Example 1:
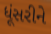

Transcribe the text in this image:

ધૂંસરીને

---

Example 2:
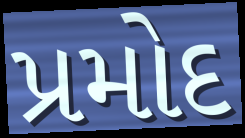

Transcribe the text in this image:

પ્રમોદ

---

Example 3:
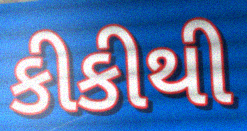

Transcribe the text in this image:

કીકીથી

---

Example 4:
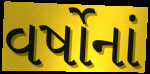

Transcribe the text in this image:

વર્ષોનાં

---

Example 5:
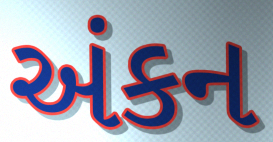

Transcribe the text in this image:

અંકન